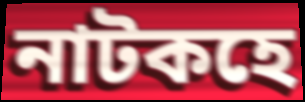
নাটকহে